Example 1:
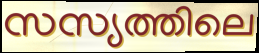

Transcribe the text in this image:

സസ്യത്തിലെ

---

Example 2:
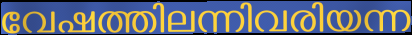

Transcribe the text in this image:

വേഷത്തിലന്നിവരിയന്ന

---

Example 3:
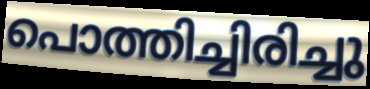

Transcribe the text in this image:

പൊത്തിച്ചിരിച്ചു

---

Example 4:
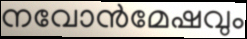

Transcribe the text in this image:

നവോൻമേഷവും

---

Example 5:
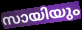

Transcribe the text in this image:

സായിയും